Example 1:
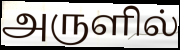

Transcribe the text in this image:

அருளில்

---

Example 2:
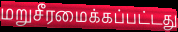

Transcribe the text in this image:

மறுசீரமைக்கப்பட்டது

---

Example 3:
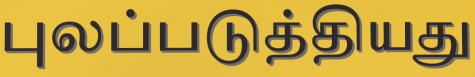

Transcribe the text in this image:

புலப்படுத்தியது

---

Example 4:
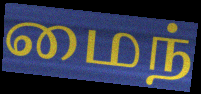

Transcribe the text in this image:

மைந்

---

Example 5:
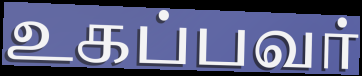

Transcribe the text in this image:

உகப்பவர்